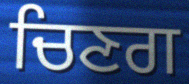
ਚਿਣਗ